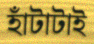
হাঁটাটাই